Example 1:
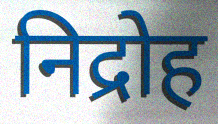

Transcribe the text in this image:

निद्रोह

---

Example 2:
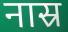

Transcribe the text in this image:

नास्र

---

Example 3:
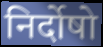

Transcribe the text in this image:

निर्दोषो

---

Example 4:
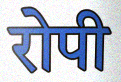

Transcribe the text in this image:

रोपी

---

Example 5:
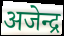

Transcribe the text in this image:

अजेन्द्र